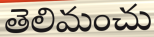
తెలిమంచు